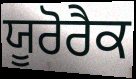
ਯੂਰੋਰੈਕ